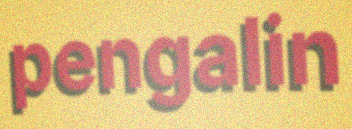
pengalin